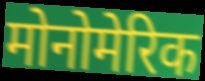
मोनोमेरिक